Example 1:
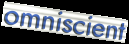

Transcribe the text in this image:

omniscient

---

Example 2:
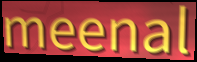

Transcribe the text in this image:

meenal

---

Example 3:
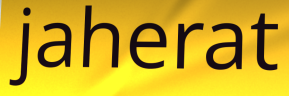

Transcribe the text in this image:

jaherat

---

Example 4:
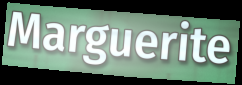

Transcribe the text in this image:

Marguerite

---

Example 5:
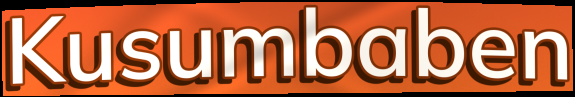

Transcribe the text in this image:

Kusumbaben